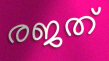
രജത്